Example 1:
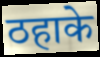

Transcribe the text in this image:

ठहाके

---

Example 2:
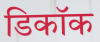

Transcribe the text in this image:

डिकॉक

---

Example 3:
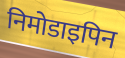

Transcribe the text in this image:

निमोडाइपिन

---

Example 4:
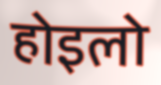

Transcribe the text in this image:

होइलो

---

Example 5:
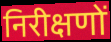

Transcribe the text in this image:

निरीक्षणों